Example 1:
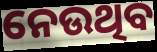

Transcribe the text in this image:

ନେଉଥିବ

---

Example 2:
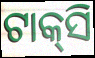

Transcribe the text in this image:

ଟାକ୍‍ସି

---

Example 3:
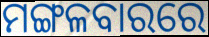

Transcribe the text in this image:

ମଙ୍ଗଳବାରରେ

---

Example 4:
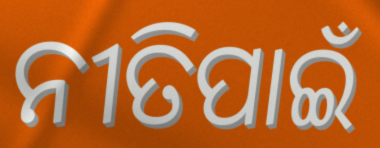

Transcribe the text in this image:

ନୀତିପାଇଁ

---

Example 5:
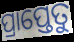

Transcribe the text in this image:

ପ୍ରାପ୍ତେତୁ